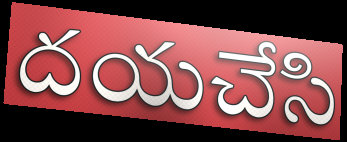
దయచేసి